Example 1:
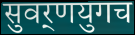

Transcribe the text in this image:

सुवर्णयुगच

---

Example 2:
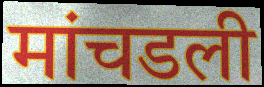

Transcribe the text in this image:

मांचडली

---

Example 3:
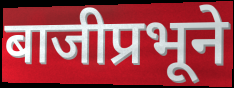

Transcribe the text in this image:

बाजीप्रभूने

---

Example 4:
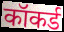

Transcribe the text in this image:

कॉकर्ड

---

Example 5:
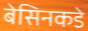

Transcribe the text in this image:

बेसिनकडे